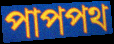
পাপপথ